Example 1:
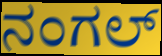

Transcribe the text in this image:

ನಂಗಲ್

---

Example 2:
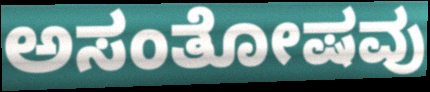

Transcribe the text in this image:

ಅಸಂತೋಷವು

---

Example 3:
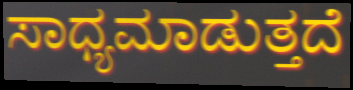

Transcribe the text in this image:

ಸಾಧ್ಯಮಾಡುತ್ತದೆ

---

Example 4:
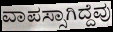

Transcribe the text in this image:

ವಾಪಸ್ಸಾಗಿದ್ದೆವು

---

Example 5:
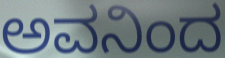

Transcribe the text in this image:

ಅವನಿಂದ